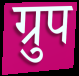
ग्रुप